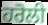
ਹਰੋਲੀ